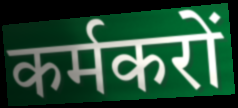
कर्मकरों